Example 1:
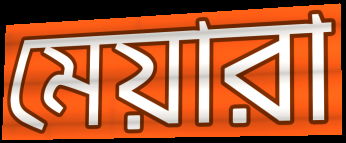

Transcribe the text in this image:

মেয়ারা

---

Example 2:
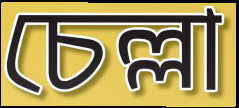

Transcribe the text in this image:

চেল্লা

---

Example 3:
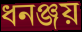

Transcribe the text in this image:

ধনঞ্জয়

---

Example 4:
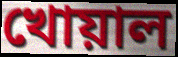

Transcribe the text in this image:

খোয়াল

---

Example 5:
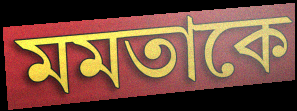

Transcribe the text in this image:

মমতাকে